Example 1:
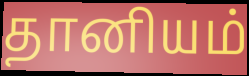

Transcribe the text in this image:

தானியம்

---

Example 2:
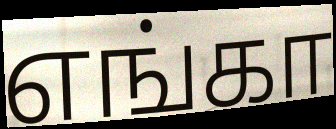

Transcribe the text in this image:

எங்கா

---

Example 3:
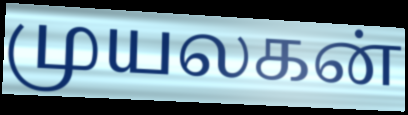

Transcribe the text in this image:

முயலகன்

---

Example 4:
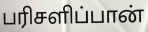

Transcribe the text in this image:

பரிசளிப்பான்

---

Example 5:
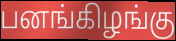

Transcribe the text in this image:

பனங்கிழங்கு